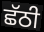
ਛੱਠੀ